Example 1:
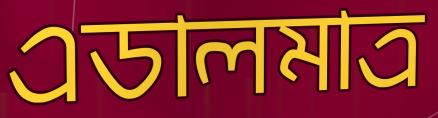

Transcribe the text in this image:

এডালমাত্ৰ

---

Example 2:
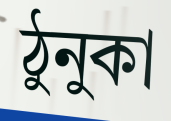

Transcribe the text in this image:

ঠুনুকা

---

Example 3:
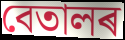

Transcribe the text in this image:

বেতালৰ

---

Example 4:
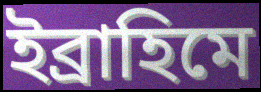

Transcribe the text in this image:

ইব্ৰাহিমে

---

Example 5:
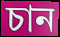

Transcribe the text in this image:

চান